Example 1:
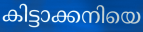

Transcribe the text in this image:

കിട്ടാക്കനിയെ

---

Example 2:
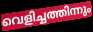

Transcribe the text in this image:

വെളിച്ചത്തിന്നും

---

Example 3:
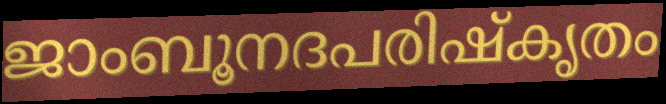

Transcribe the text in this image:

ജാംബൂനദപരിഷ്കൃതം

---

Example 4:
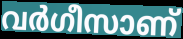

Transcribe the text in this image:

വർഗീസാണ്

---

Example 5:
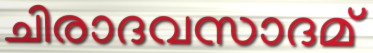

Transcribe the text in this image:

ചിരാദവസാദമ്